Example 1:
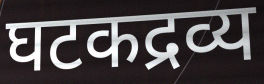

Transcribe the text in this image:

घटकद्रव्य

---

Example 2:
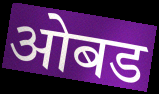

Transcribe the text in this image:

ओबड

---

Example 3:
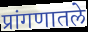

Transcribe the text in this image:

प्रांगणातले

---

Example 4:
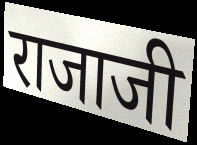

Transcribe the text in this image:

राजाजी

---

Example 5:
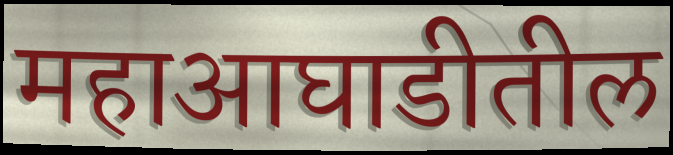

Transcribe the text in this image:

महाआघाडीतील